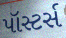
પૉસ્ટર્સ